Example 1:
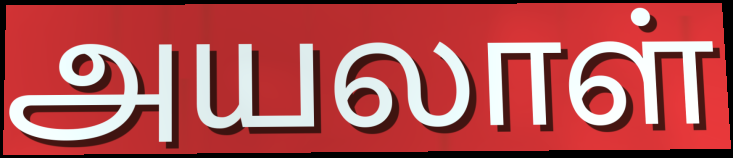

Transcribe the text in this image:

அயலாள்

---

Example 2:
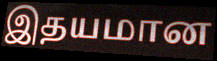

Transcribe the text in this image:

இதயமான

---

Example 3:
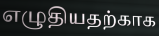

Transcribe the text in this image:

எழுதியதற்காக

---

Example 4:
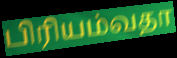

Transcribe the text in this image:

பிரியம்வதா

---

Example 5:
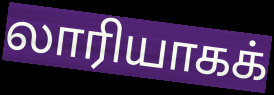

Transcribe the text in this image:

லாரியாகக்